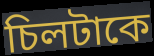
চিলটাকে